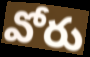
వోరు